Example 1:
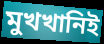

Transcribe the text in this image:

মুখখানিই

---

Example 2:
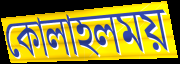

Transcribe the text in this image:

কোলাহলময়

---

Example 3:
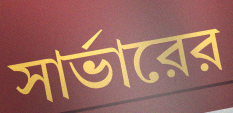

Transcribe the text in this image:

সার্ভারের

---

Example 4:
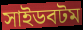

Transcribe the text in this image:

সাইডবটম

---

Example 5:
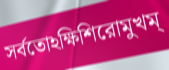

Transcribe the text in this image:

সর্বতোঽক্ষিশিরোমুখম্